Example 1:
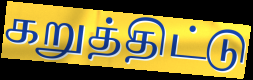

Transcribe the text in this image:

கறுத்திட்டு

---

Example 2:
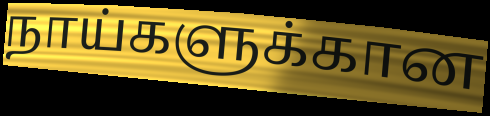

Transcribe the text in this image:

நாய்களுக்கான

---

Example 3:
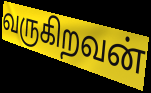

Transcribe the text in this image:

வருகிறவன்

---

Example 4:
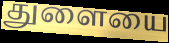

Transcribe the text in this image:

துளையை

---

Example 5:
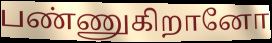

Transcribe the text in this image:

பண்ணுகிறானோ